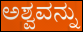
ಅಶ್ವವನ್ನು